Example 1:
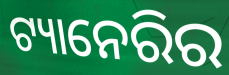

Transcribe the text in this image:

ଟ୍ୟାନେରିର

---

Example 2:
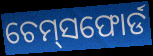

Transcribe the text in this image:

ଚେମ୍‌ସଫୋର୍ଡ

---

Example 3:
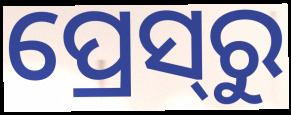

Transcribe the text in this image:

ପ୍ରେସ୍‌ରୁ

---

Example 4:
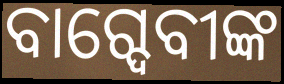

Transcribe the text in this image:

ବାଗ୍ଦେବୀଙ୍କ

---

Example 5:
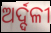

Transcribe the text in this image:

ଅର୍ଦ୍ଦଳୀ